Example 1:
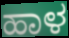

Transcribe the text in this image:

ಹಾಳ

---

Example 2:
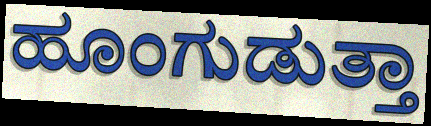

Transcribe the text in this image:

ಹೂಂಗುಡುತ್ತಾ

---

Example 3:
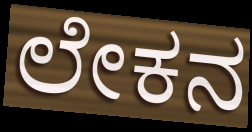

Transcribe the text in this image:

ಲೇಕನ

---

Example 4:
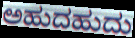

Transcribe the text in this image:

ಅಹುದಹುದು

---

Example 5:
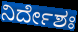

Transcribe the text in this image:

ನಿರ್ದೇಶಃ